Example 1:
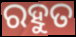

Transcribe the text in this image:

ରହୁତ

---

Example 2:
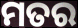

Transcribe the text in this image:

ମତର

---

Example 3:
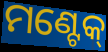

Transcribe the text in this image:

ମଣ୍ଟେକ୍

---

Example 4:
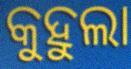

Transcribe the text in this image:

କୁହୁଲା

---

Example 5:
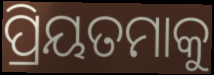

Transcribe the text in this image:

ପ୍ରିୟତମାକୁ